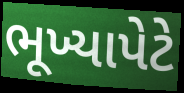
ભૂખ્યાપેટે